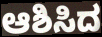
ಆಶಿಸಿದ